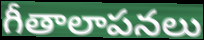
గీతాలాపనలు